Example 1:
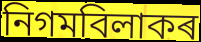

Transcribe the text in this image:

নিগমবিলাকৰ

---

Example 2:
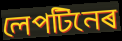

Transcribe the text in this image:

লেপটিনেৰ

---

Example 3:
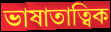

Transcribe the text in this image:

ভাষাতাত্বিক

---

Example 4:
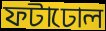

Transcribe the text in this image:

ফটাঢোল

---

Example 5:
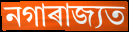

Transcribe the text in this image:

নগাৰাজ্যত